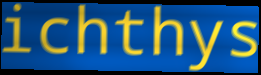
ichthys